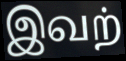
இவற்